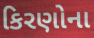
કિરણોના